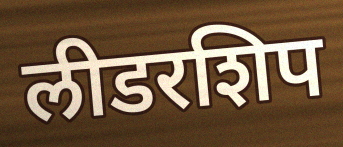
लीडरशिप